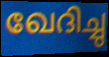
ഖേദിച്ചു